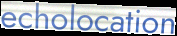
echolocation